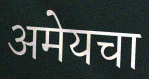
अमेयचा